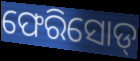
ଫେରିସୋଡ୍